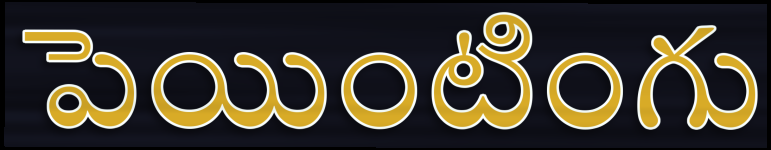
పెయింటింగు